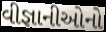
વીજ્ઞાનીઓનો